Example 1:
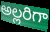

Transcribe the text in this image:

అల్లరిగా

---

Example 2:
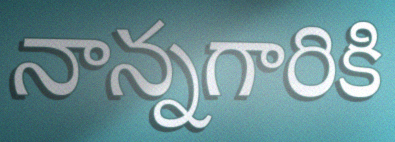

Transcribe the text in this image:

నాన్నగారికి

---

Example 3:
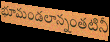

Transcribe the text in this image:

భూమండలాన్నంతటినీ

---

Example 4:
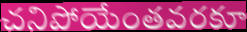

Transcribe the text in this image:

చనిపోయేంతవరకూ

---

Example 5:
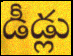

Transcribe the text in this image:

డీడ్లు